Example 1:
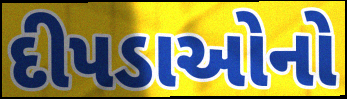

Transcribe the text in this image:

દીપડાઓનો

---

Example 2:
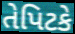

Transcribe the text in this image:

તેપિટકે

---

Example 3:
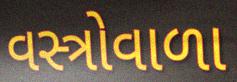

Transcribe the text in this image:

વસ્ત્રોવાળા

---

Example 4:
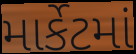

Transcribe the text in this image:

માર્કેટમાં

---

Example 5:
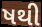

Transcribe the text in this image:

ષથી